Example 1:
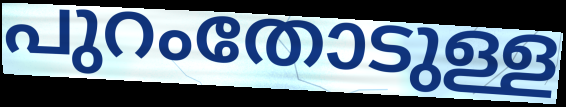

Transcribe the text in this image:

പുറംതോടുള്ള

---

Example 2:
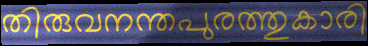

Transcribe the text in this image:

തിരുവനന്തപുരത്തുകാരി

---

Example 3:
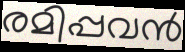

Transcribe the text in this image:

രമിപ്പവൻ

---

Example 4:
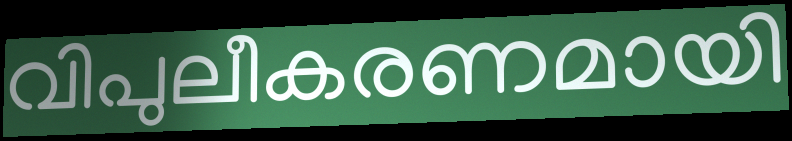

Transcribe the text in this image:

വിപുലീകരണമായി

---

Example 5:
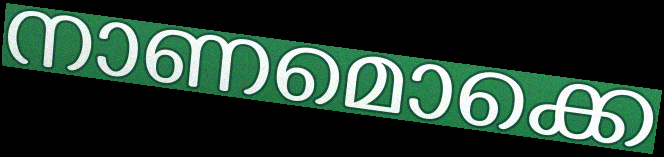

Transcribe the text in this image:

നാണമൊക്കെ